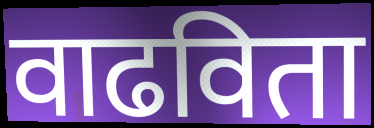
वाढविता